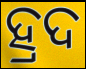
ହ୍ରଦ